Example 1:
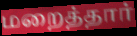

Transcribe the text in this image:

மறைத்தார்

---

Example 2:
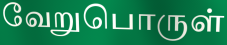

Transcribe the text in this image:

வேறுபொருள்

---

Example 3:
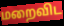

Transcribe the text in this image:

மறைவிட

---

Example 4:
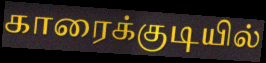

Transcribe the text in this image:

காரைக்குடியில்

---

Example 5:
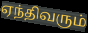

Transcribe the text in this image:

ஏந்திவரும்